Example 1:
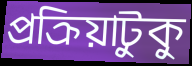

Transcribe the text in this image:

প্রক্রিয়াটুকু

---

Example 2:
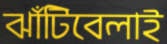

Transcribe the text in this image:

ঝাঁটিবেলাই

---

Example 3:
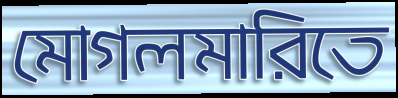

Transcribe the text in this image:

মোগলমারিতে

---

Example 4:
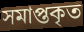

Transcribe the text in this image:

সমাপ্তকৃত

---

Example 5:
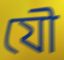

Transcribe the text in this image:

যৌ